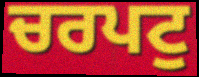
ਚਰਪਟੁ